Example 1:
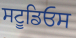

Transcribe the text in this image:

ਸਟੂਡਿਓਸ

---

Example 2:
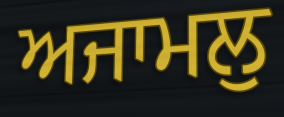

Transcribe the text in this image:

ਅਜਾਮਲੁ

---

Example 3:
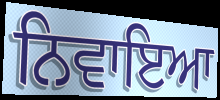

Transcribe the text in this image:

ਨਿਵਾਇਆ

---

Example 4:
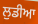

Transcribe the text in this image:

ਲੁਡੀਆ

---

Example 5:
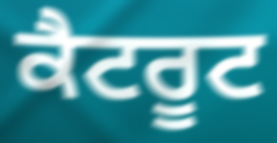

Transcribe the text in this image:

ਕੈਟਰੂਟ